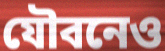
যৌবনেও